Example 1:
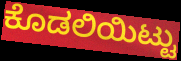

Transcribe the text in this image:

ಕೊಡಲಿಯಿಟ್ಟು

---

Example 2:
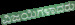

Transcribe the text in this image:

ವಿಜಯಿಗಳಾದರು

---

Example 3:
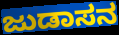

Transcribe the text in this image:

ಜುಡಾಸನ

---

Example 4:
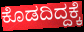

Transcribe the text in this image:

ಕೊಡದಿದ್ದಕ್ಕೆ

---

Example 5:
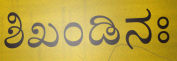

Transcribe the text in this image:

ಶಿಖಂಡಿನಃ